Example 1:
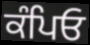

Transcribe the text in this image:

ਕੰਪਿਓ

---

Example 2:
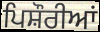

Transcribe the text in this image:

ਪਿਸ਼ੌਰੀਆਂ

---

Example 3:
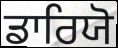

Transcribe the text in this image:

ਡਾਰਿਯੋ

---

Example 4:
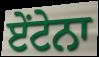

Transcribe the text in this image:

ਏਂਟੇਨਾ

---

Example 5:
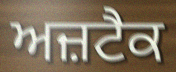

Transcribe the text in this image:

ਅਜ਼ਟੈਕ